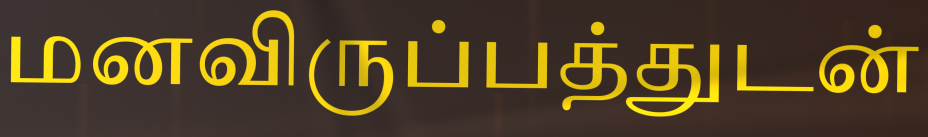
மனவிருப்பத்துடன்